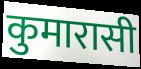
कुमारासी